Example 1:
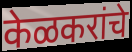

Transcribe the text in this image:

केळकरांचे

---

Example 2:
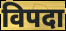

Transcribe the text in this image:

विपदा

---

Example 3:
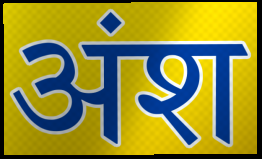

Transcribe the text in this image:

अंश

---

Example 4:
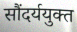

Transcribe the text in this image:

सौंदर्ययुक्त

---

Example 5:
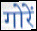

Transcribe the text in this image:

गोरें